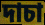
দাচা